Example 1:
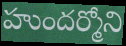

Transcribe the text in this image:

హుందర్మోని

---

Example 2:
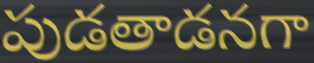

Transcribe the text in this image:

పుడతాడనగా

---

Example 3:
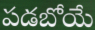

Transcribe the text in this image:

పడబోయే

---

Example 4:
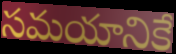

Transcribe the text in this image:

సమయానికే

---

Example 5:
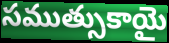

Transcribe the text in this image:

సముత్సుకాయై